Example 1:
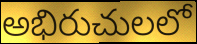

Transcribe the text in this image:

అభిరుచులలో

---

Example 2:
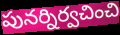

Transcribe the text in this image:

పునర్నిర్వచించి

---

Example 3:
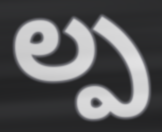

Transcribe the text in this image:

ల్ప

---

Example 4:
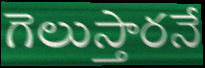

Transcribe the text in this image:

గెలుస్తారనే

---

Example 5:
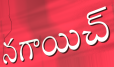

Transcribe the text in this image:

నగాయిచ్